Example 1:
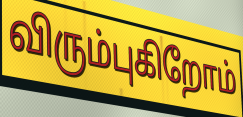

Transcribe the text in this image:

விரும்புகிறோம்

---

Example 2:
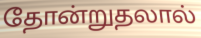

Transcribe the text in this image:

தோன்றுதலால்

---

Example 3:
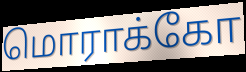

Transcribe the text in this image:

மொராக்கோ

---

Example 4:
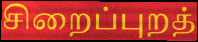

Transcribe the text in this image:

சிறைப்புறத்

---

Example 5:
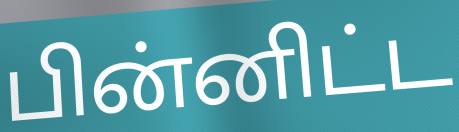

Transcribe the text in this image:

பின்னிட்ட